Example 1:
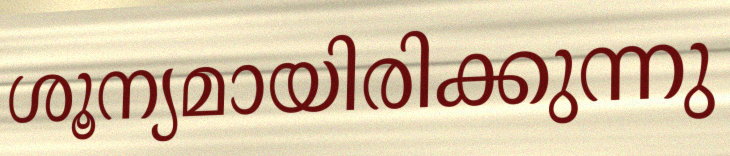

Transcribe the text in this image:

ശൂന്യമായിരിക്കുന്നു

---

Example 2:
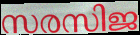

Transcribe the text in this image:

സരസിജ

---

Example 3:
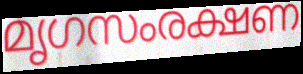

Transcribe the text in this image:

മൃഗസംരക്ഷണ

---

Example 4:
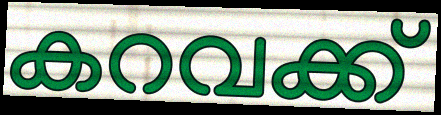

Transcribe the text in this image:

കറവക്ക്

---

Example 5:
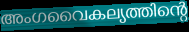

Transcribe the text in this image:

അംഗവൈകല്യത്തിന്റെ